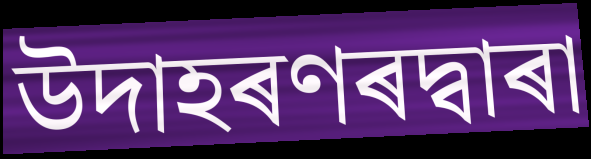
উদাহৰণৰদ্বাৰা